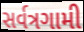
સર્વત્રગામી